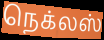
நெக்லஸ்